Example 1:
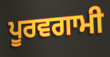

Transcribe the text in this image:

ਪੂਰਵਗਾਮੀ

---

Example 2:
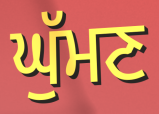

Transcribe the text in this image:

ਘੁੱਮਣ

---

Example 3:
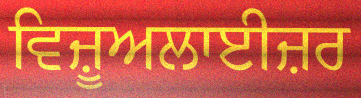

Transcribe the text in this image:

ਵਿਜ਼ੂਅਲਾਈਜ਼ਰ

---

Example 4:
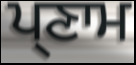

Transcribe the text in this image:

ਪ੍ਣਾਮ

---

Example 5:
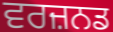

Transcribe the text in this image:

ਵਰਜ਼ਨਡ